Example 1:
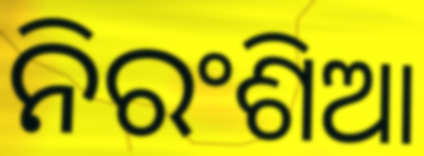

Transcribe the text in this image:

ନିରଂଶିଆ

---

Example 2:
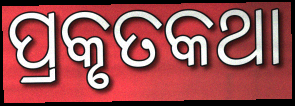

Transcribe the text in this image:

ପ୍ରକୃତକଥା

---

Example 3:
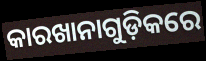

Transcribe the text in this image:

କାରଖାନାଗୁଡ଼ିକରେ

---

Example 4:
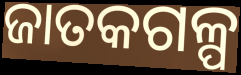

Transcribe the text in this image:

ଜାତକଗଳ୍ପ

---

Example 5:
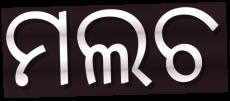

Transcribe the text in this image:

ମଲଚ